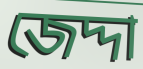
জেদ্দা